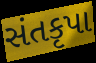
સંતકૃપા